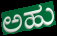
ಅಹು